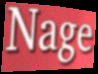
Nage